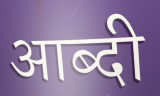
आब्दी